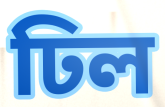
ঢিল